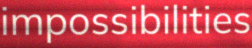
impossibilities